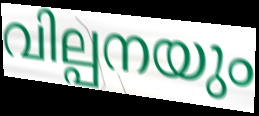
വില്പനയും